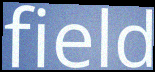
field